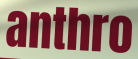
anthro